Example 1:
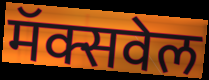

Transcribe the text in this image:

मॅक्सवेल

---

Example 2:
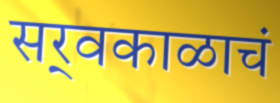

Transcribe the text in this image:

सर्वकाळाचं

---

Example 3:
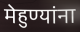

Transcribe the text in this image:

मेहुण्यांना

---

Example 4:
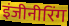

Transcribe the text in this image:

इंजीनीरिंग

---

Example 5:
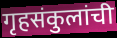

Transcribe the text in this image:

गृहसंकुलांची